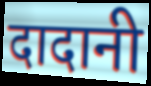
दादानी